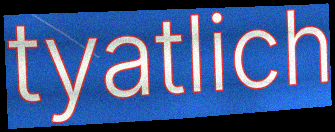
tyatlich